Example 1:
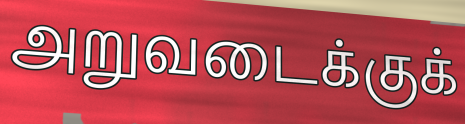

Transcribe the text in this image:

அறுவடைக்குக்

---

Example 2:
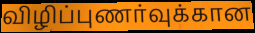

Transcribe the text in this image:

விழிப்புணர்வுக்கான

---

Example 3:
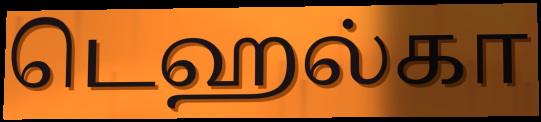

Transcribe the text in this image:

டெஹல்கா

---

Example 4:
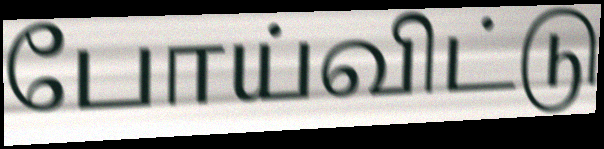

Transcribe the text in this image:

போய்விட்டு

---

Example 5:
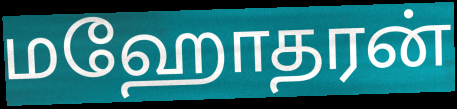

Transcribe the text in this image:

மஹோதரன்